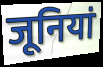
जूनियां